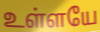
உள்ளயே